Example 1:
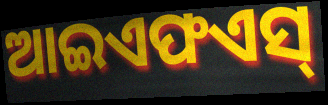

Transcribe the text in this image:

ଆଇଏଫଏସ୍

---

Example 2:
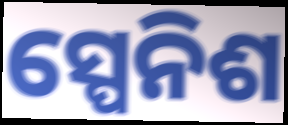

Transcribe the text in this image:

ସ୍ପେନିଶ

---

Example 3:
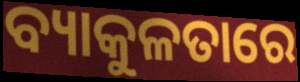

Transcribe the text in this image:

ବ୍ୟାକୁଳତାରେ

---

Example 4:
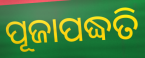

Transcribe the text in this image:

ପୂଜାପଦ୍ଧତି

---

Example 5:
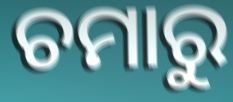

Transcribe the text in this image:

ଚମାରୁ